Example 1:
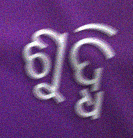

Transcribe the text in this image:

ଶୁଦ୍ଧି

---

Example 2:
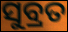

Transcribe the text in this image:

ସୁବ୍ରତ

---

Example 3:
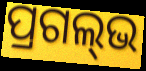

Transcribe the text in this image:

ପ୍ରଗଲ୍‌ଭ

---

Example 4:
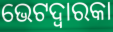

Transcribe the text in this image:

ଭେଟଦ୍ୱାରକା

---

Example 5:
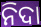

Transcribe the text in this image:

ନିଦା